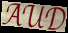
AUD